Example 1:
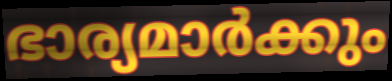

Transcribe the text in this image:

ഭാര്യമാർക്കും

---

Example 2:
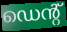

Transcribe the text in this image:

ഡെന്റ്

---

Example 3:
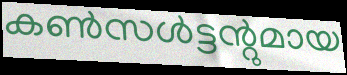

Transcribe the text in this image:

കൺസൾട്ടന്റുമായ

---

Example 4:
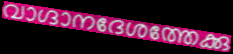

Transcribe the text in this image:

വാഗ്ദാനദേശത്തേക്കു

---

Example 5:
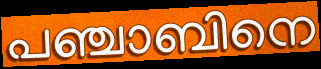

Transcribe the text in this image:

പഞ്ചാബിനെ